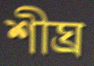
শীঘ্র